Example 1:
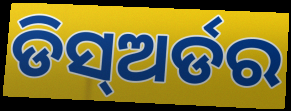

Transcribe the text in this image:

ଡିସ୍ଅର୍ଡର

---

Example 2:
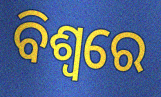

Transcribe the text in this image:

ବିଶ୍ଵରେ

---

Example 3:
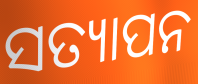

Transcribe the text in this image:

ସତ୍ୟାପନ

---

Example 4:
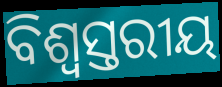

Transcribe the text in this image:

ବିଶ୍ଵସ୍ତରୀୟ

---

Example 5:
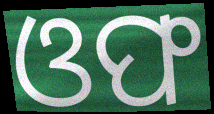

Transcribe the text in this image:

ଓଫ